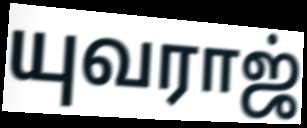
யுவராஜ்